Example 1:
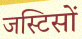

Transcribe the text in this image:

जस्टिसों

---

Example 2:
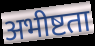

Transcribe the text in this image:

अभीष्टता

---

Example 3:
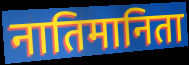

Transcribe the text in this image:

नातिमानिता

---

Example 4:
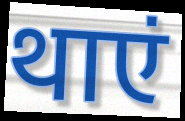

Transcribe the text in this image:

थाएं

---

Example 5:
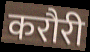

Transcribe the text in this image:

करौरी